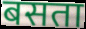
बसता